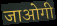
जाओगी